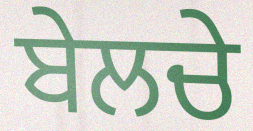
ਬੇਲਚੇ